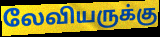
லேவியருக்கு